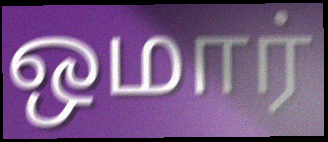
ஒமார்